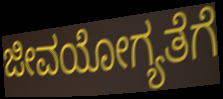
ಜೀವಯೋಗ್ಯತೆಗೆ